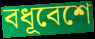
বধূবেশে